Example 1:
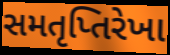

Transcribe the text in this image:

સમતૃપ્તિરેખા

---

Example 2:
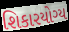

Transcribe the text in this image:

શિકારયોગ્ય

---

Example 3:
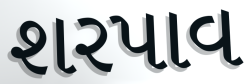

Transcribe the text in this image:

શરપાવ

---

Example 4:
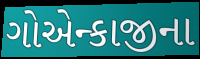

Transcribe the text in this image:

ગોએન્કાજીના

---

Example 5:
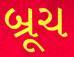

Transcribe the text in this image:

બ્રૂચ